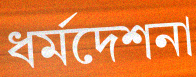
ধর্মদেশনা